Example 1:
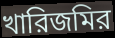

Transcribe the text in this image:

খারিজমির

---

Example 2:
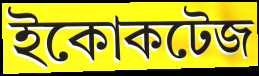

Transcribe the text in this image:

ইকোকটেজ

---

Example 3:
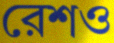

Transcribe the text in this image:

রেশও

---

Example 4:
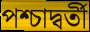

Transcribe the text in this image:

পশ্চাদ্বর্তী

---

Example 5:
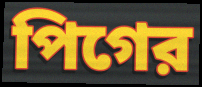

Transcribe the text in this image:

পিগের